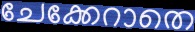
ചേക്കേറാതെ